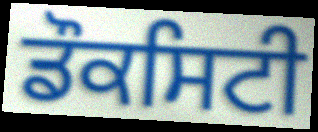
ਡੌਕਸਿਟੀ